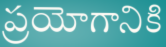
ప్రయోగానికి